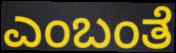
ಎಂಬಂತೆ